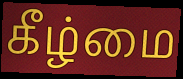
கீழ்மை